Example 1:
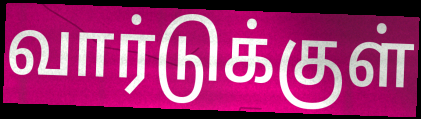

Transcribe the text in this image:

வார்டுக்குள்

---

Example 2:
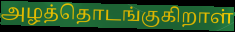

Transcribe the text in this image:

அழத்தொடங்குகிறாள்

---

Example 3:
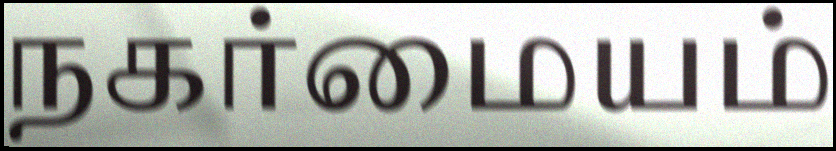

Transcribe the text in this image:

நகர்மையம்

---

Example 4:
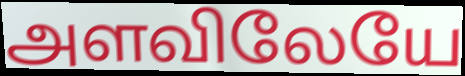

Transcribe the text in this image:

அளவிலேயே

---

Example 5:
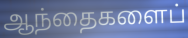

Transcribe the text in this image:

ஆந்தைகளைப்